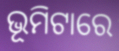
ଭୂମିଟାରେ